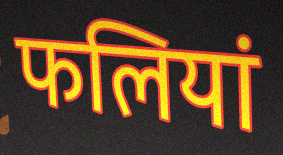
फलियां